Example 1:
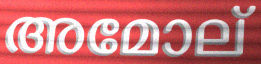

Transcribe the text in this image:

അമോല്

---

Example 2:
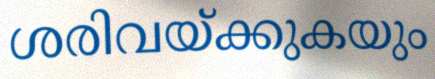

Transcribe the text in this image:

ശരിവയ്ക്കുകയും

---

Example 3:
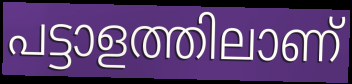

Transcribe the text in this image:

പട്ടാളത്തിലാണ്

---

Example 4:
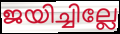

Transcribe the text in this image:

ജയിച്ചില്ലേ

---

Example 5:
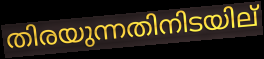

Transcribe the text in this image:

തിരയുന്നതിനിടയില്